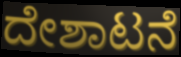
ದೇಶಾಟನೆ